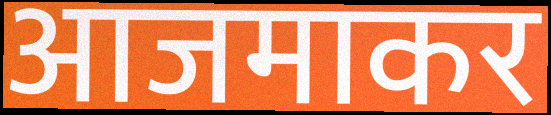
आजमाकर